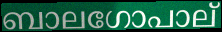
ബാലഗോപാല്